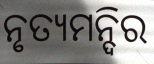
ନୃତ୍ୟମନ୍ଦିର